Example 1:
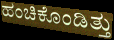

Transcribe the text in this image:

ಹಂಚಿಕೊಂಡಿತ್ತು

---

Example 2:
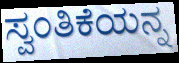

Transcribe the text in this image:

ಸ್ವಂತಿಕೆಯನ್ನ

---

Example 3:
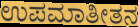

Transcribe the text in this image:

ಉಪಮಾತೀತನ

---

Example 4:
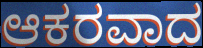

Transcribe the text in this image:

ಆಕರವಾದ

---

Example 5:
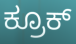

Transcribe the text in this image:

ಕ್ರೂಕ್